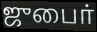
ஜுபைர்